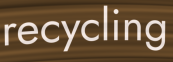
recycling